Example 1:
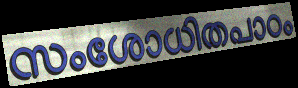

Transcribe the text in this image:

സംശോധിതപാഠം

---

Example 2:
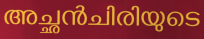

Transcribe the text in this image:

അച്ഛൻചിരിയുടെ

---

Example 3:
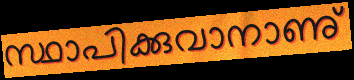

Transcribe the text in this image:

സ്ഥാപിക്കുവാനാണു്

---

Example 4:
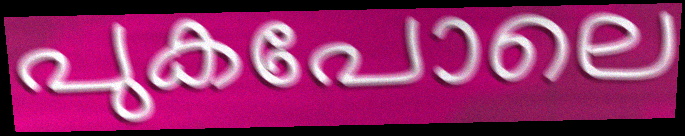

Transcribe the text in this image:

പുകപോലെ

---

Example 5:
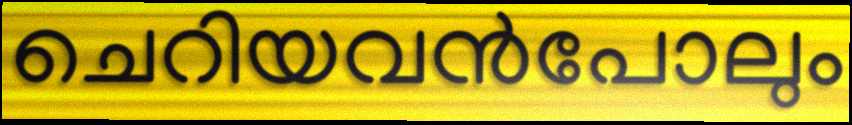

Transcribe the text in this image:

ചെറിയവൻപോലും